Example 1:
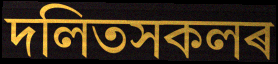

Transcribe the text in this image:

দলিতসকলৰ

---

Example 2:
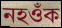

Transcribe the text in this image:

নহওঁক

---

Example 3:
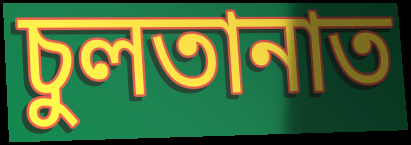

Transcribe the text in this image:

চুলতানাত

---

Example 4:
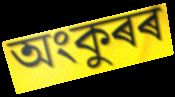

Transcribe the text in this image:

অংকুৰৰ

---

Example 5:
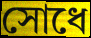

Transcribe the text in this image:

সোধে